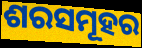
ଶରସମୂହର